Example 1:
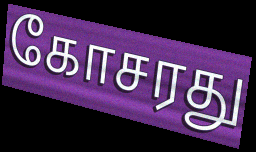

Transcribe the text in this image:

கோசரது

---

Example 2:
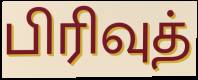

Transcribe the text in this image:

பிரிவுத்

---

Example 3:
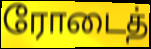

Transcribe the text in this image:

ரோடைத்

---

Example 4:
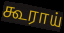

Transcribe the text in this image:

கூராய்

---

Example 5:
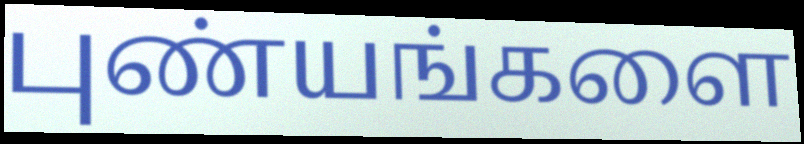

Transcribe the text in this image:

புண்யங்களை